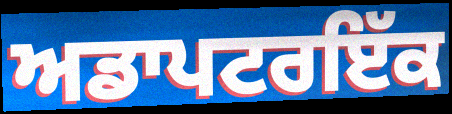
ਅਡਾਪਟਰਇੱਕ